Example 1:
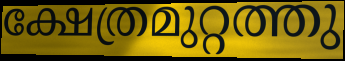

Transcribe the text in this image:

ക്ഷേത്രമുറ്റത്തു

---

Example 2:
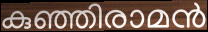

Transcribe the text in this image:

കുഞ്ഞിരാമൻ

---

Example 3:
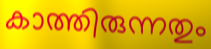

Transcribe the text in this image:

കാത്തിരുന്നതും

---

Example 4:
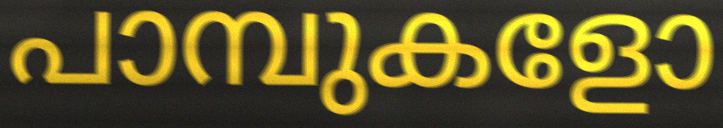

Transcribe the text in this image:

പാമ്പുകളോ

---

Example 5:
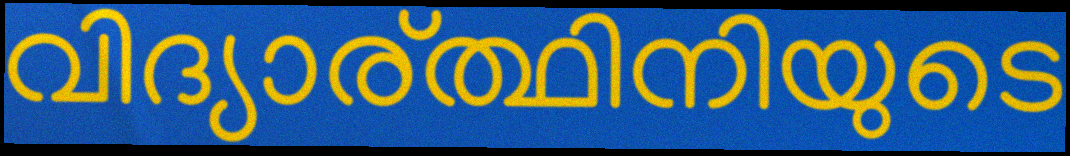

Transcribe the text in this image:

വിദ്യാര്ത്ഥിനിയുടെ